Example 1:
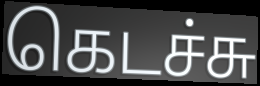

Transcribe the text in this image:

கெடச்சு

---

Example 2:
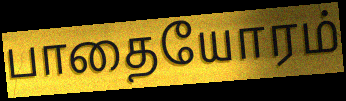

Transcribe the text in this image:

பாதையோரம்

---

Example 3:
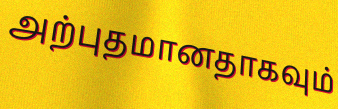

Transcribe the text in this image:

அற்புதமானதாகவும்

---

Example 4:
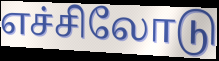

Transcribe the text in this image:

எச்சிலோடு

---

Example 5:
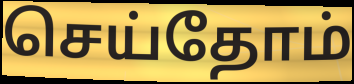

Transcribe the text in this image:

செய்தோம்